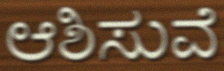
ಆಶಿಸುವೆ